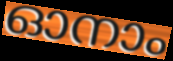
ഓനാം